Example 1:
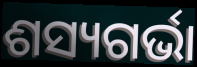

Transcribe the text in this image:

ଶସ୍ୟଗର୍ଭା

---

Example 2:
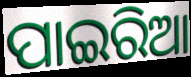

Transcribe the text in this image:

ପାଇରିଆ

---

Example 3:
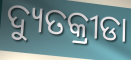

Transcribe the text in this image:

ଦ୍ୟୁତକ୍ରୀଡା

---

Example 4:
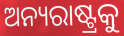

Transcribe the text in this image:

ଅନ୍ୟରାଷ୍ଟ୍ରକୁ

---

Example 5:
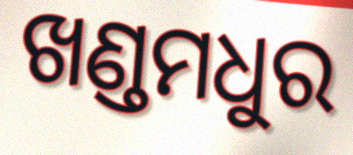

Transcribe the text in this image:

ଖଣ୍ଡମଧୁର